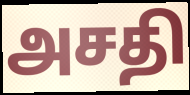
அசதி